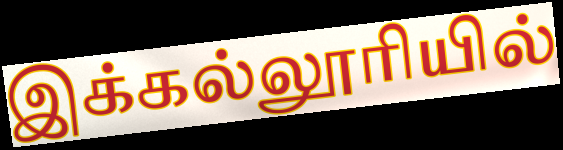
இக்கல்லூரியில்